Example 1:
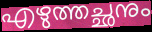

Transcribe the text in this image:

എഴുത്തച്ഛനും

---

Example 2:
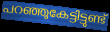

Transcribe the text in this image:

പറഞ്ഞുകേട്ടിട്ടുണ്ട്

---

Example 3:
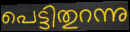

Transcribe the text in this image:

പെട്ടിതുറന്നു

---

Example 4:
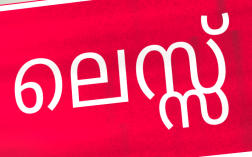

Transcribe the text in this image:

ലെസ്സ്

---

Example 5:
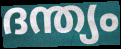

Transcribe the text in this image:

ദന്ത്യം